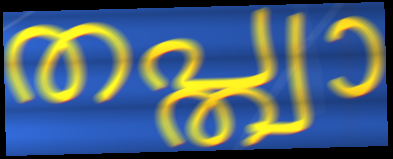
തപ്ത്വാ